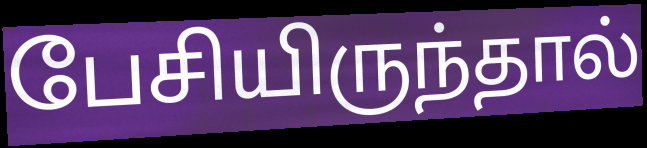
பேசியிருந்தால்